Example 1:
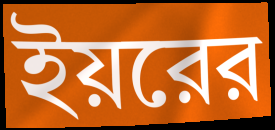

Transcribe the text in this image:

ইয়রের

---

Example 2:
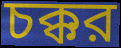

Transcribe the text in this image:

চক্কর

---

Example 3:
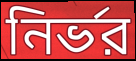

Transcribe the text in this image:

নির্ভর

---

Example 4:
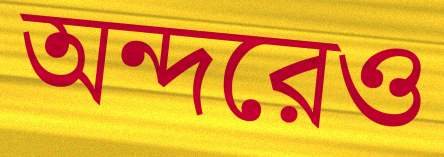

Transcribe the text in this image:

অন্দরেও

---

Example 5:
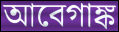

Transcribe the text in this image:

আবেগাঙ্ক